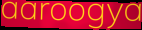
aaroogya